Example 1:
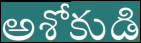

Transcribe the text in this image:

అశోకుడి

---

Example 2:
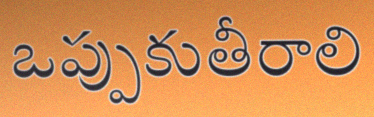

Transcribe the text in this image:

ఒప్పుకుతీరాలి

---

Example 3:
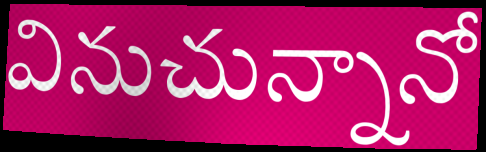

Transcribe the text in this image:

వినుచున్నానో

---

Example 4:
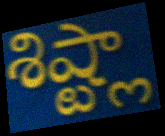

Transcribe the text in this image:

శిష్ట్లా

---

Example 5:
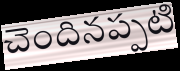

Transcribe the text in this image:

చెందినప్పటి